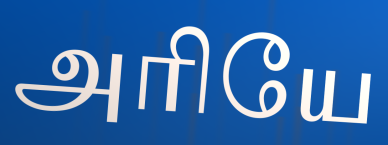
அரியே